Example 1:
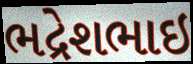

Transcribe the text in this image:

ભદ્રેશભાઇ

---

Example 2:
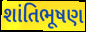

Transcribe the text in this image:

શાંતિભૂષણ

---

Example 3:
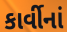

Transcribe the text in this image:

કાર્વીનાં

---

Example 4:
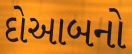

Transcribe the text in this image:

દોઆબનો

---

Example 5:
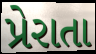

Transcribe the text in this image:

પ્રેરાતા